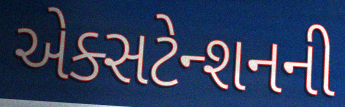
એક્સટેન્શનની